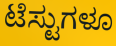
ಟೆಸ್ಟುಗಳೂ